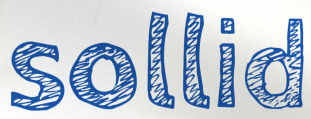
sollid